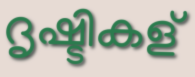
ദൃഷ്ടികള്